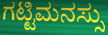
ಗಟ್ಟಿಮನಸ್ಸು